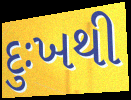
દુઃખથી